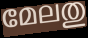
മേലതു